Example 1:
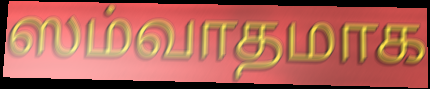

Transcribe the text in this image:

ஸம்வாதமாக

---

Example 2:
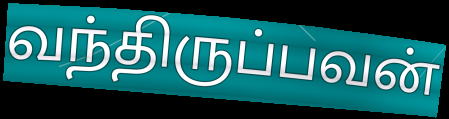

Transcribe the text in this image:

வந்திருப்பவன்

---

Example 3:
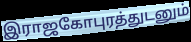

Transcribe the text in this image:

இராஜகோபுரத்துடனும்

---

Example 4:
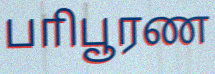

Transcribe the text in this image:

பரிபூரண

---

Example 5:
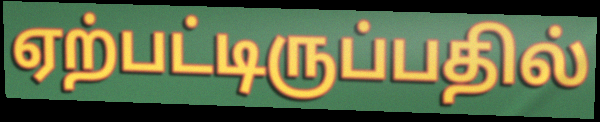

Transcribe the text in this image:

ஏற்பட்டிருப்பதில்